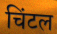
चिंटल